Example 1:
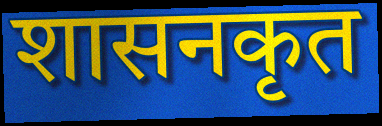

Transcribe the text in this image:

शासनकृत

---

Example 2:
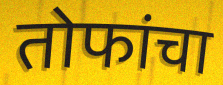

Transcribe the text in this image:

तोफांचा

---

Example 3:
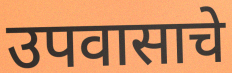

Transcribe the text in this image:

उपवासाचे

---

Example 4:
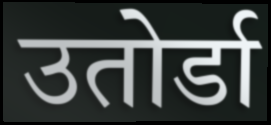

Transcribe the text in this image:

उतोर्डा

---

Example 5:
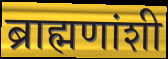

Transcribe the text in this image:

ब्राह्मणांशी